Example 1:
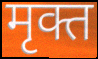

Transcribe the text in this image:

मृक्त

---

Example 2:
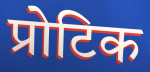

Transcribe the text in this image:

प्रोटिक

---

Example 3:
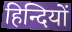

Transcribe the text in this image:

हिन्दियों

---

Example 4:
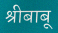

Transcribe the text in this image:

श्रीबाबू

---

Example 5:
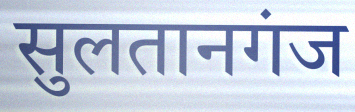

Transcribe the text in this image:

सुलतानगंज